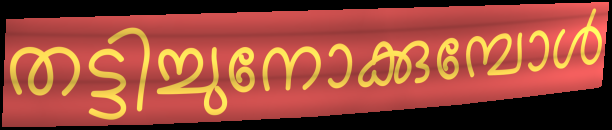
തട്ടിച്ചുനോക്കുമ്പോൾ